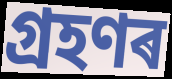
গ্ৰহণৰ